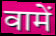
वामें